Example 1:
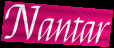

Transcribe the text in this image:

Nantar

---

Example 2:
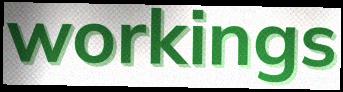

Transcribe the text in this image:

workings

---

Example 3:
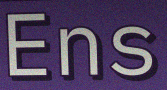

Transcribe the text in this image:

Ens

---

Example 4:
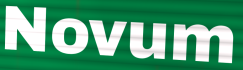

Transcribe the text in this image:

Novum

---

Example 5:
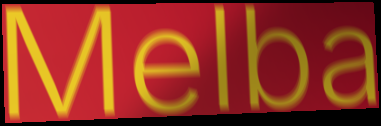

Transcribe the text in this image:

Melba